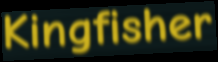
Kingfisher